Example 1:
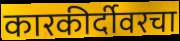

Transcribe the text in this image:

कारकीर्दीवरचा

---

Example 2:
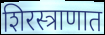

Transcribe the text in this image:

शिरस्त्राणात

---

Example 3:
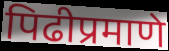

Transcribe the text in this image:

पिढीप्रमाणे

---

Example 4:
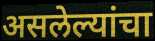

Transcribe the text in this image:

असलेल्यांचा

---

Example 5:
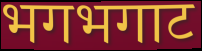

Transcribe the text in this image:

भगभगाट